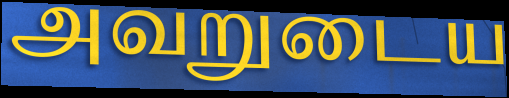
அவறுடைய